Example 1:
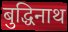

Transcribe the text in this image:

बुद्धिनाथ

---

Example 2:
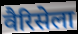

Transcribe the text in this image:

वैरिसेला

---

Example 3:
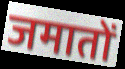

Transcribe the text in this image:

जमातों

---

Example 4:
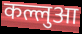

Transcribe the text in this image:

कल्लुआ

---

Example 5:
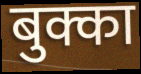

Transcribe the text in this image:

बुक्का